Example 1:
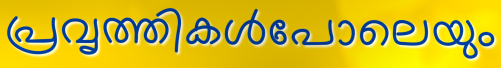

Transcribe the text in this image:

പ്രവൃത്തികൾപോലെയും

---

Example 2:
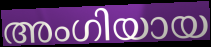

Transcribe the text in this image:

അംഗിയായ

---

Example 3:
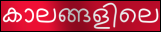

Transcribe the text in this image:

കാലങ്ങളിലെ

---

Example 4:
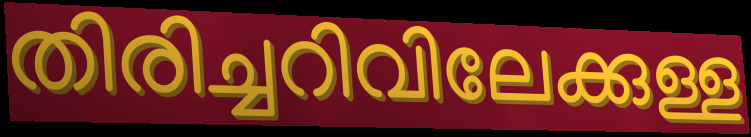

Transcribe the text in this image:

തിരിച്ചറിവിലേക്കുള്ള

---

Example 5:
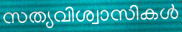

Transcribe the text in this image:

സത്യവിശ്വാസികൾ